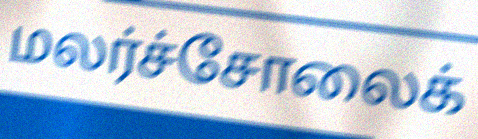
மலர்ச்சோலைக்